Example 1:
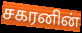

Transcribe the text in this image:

சகரனின்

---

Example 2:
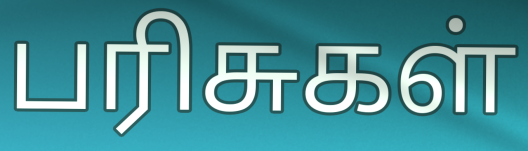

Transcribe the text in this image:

பரிசுகள்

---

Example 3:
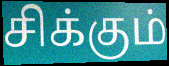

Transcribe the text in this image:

சிக்கும்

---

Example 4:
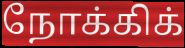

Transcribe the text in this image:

நோக்கிக்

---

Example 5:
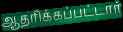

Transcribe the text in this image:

ஆதரிக்கப்பட்டார்